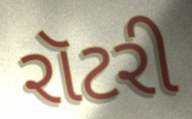
રૉટરી